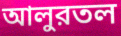
আলুরতল